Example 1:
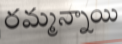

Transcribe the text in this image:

రమ్మన్నాయి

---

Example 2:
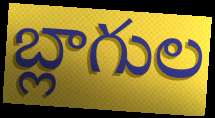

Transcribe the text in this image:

బ్లాగుల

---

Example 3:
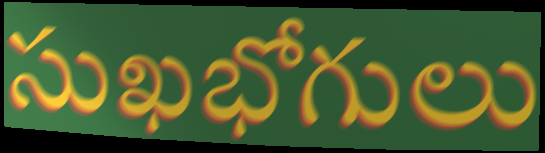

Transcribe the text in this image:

సుఖభోగులు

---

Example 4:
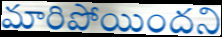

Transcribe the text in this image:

మారిపోయిందని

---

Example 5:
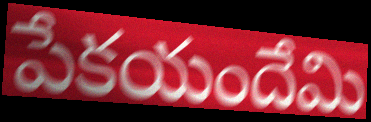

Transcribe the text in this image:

పేకయందేమి